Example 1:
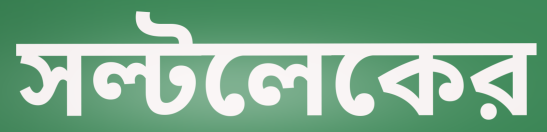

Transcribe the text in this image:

সল্টলেকের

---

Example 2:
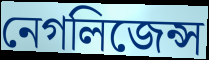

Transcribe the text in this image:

নেগলিজেন্স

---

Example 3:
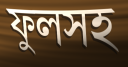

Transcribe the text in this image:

ফুলসহ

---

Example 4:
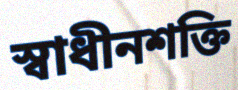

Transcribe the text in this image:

স্বাধীনশক্তি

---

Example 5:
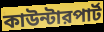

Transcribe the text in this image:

কাউন্টারপার্ট